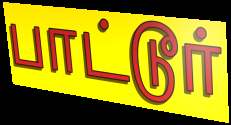
பாட்டூர்